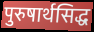
पुरुषार्थसिद्ध